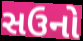
સઉનો